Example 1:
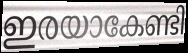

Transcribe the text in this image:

ഇരയാകേണ്ടി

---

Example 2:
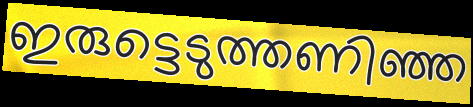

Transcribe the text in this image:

ഇരുട്ടെടുത്തണിഞ്ഞ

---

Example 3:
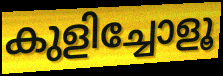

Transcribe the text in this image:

കുളിച്ചോളൂ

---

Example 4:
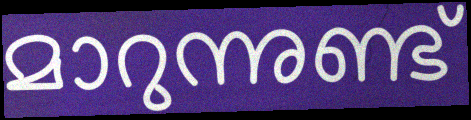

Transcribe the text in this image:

മാറുന്നുണ്ട്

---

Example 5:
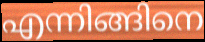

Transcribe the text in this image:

എന്നിങ്ങിനെ